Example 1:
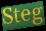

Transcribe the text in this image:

Steg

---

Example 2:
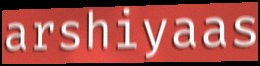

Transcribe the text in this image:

arshiyaas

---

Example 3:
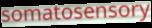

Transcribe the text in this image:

somatosensory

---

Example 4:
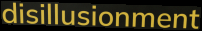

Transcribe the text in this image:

disillusionment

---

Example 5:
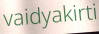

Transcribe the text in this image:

vaidyakirti